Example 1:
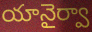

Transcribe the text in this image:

యానైర్వా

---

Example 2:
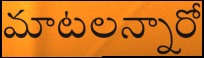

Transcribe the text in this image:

మాటలన్నారో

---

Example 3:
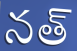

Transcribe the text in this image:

నత్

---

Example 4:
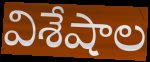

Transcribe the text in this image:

విశేషాల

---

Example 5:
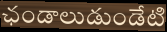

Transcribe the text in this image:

ఛండాలుడుండేటి